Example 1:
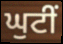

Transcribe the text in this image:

ਘੁਟੀਂ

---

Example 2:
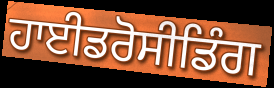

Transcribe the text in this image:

ਹਾਈਡਰੋਸੀਡਿੰਗ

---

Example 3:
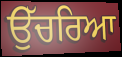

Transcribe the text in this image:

ਉੱਚਰਿਆ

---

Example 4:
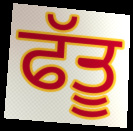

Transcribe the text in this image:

ਫੱਤੂ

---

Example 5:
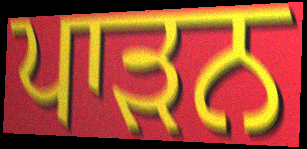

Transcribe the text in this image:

ਪਾੜਨ